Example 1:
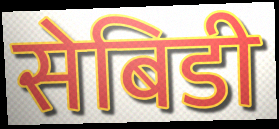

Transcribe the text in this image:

सेबिडी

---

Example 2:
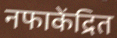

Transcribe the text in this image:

नफाकेंद्रित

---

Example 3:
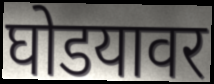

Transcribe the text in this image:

घोडयावर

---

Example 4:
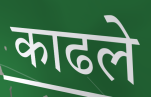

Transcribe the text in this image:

काढले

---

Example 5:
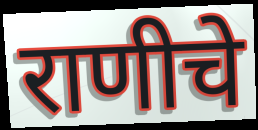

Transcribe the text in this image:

राणीचे